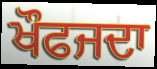
ਖੌਫਜਦਾ